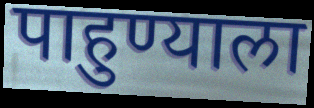
पाहुण्याला